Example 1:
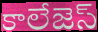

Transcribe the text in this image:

కాలేజెస్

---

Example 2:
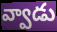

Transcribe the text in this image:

వ్వాడు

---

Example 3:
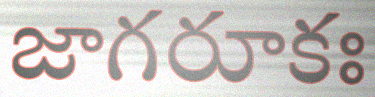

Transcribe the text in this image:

జాగరూకః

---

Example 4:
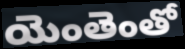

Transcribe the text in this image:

యెంతెంతో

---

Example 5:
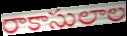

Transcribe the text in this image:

రాకాసులాల